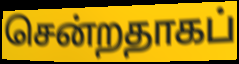
சென்றதாகப்